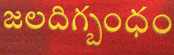
జలదిగ్బంధం